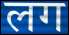
लग